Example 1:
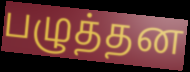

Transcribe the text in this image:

பழுத்தன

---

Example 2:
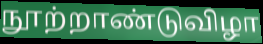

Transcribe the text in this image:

நூற்றாண்டுவிழா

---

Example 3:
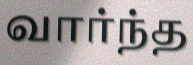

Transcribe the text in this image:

வார்ந்த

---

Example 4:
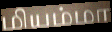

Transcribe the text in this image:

மியம்மா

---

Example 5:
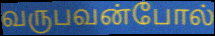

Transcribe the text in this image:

வருபவன்போல்